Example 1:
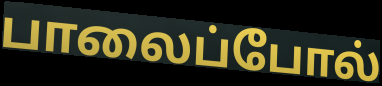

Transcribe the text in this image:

பாலைப்போல்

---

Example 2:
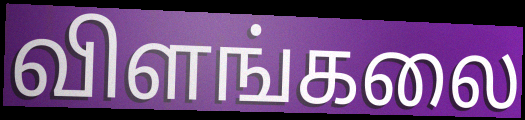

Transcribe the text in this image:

விளங்கலை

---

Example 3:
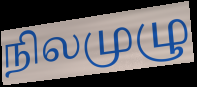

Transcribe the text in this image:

நிலமுழு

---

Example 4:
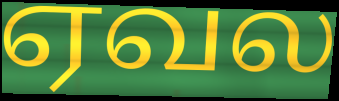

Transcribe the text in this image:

ஏவல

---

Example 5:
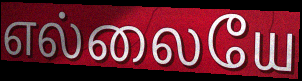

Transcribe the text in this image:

எல்லையே